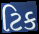
ટિક